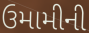
ઉમામીની